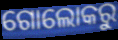
ଗୋଲୋକରୁ